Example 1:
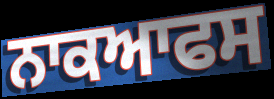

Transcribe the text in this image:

ਨਾਕਆਫਸ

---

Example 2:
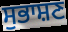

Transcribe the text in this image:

ਸੁਭਾਸ਼ਣ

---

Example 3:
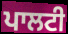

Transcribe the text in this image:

ਪਾਲਟੀ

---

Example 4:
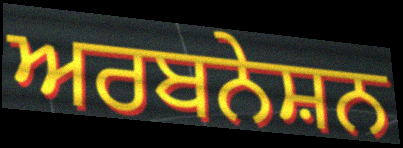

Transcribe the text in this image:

ਅਰਬਨੇਸ਼ਨ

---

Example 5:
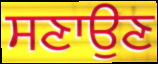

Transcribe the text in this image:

ਸਣਾਉਣ